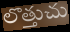
లొత్తుచు